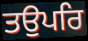
ਤਉਪਰਿ